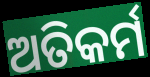
ଅତିକର୍ମ